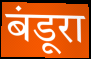
बंडूरा